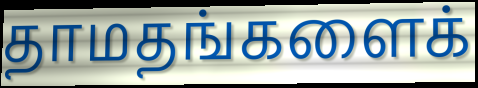
தாமதங்களைக்